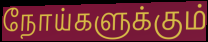
நோய்களுக்கும்